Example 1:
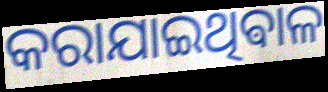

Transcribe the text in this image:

କରାଯାଇଥିଵାଳ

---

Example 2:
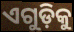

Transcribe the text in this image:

ଏଗୁଡ଼ିକୁ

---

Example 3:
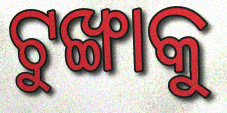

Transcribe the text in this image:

ଟୁଙ୍ଖାକୁ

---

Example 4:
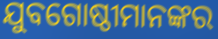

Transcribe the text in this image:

ଯୁବଗୋଷ୍ଠୀମାନଙ୍କର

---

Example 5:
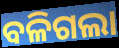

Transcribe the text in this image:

ବଳିଗଲା